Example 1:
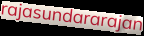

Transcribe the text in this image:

rajasundararajan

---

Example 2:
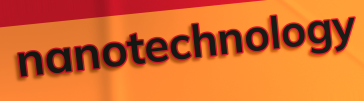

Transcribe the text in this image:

nanotechnology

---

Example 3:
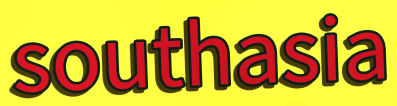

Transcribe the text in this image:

southasia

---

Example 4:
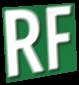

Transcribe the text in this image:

RF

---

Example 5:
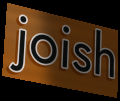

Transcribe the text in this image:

joish